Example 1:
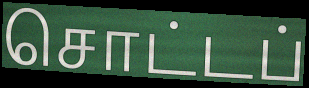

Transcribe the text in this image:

சொட்டப்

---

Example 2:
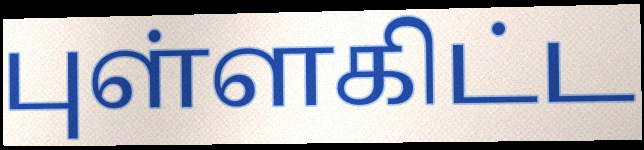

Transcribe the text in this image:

புள்ளகிட்ட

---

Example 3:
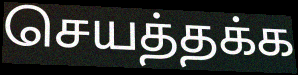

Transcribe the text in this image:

செயத்தக்க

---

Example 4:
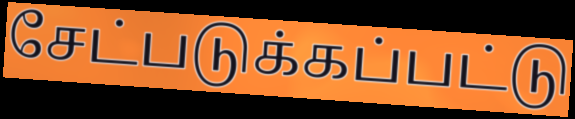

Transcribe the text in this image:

சேட்படுக்கப்பட்டு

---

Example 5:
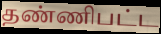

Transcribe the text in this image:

தண்ணிபட்ட